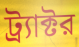
ট্র্যাক্টর